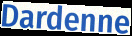
Dardenne